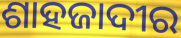
ଶାହଜାଦୀର